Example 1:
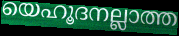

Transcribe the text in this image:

യെഹൂദനല്ലാത്ത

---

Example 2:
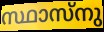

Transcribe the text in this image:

സ്ഥാസ്നു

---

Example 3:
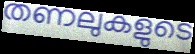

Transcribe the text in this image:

തണലുകളുടെ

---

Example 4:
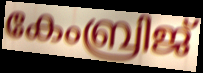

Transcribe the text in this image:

കേംബ്രിജ്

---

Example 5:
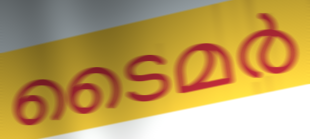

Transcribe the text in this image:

ടൈമർ